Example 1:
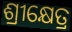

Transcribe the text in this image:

ଶ୍ରୀକ୍ଷେତ୍ର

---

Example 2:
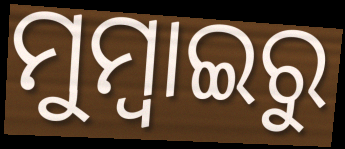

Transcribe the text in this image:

ମୁମ୍ବାଇରୁ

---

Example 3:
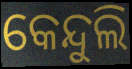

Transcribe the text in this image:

କେନ୍ଦୁଲି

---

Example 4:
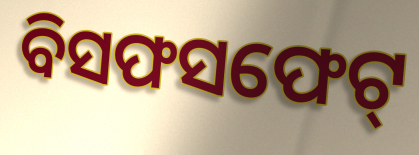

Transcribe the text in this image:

ବିସଫସଫେଟ୍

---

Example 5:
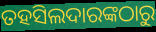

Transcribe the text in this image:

ତହସିଲଦାରଙ୍କଠାରୁ